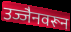
उज्जैनवरून